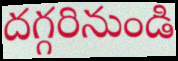
దగ్గరినుండి